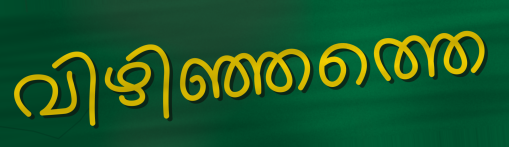
വിഴിഞ്ഞത്തെ